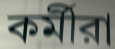
কর্মীরা